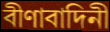
বীণাবাদিনী